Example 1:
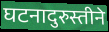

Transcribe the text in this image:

घटनादुरुस्तीने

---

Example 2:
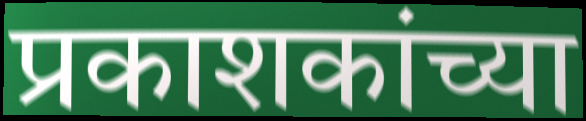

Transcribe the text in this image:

प्रकाशकांच्या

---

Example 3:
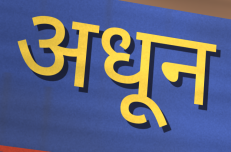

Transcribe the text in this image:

अधून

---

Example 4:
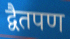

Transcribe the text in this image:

द्वैतपण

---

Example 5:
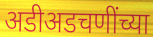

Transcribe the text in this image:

अडीअडचणींच्या